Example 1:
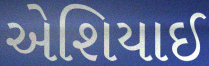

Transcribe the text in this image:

એશિયાઈ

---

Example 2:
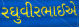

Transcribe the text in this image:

રઘુવીરભાઈએ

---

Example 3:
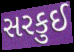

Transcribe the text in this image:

સરકુઈ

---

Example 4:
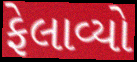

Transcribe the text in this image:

ફેલાવ્યો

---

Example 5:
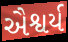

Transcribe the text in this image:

ઐશ્વર્ય